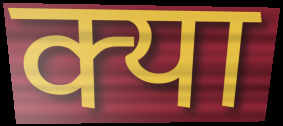
क्‍या